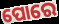
ପୋରେ